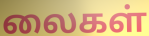
லைகள்